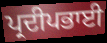
ਪ੍ਰਦੀਪਭਾਈ